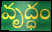
వృద్ధం